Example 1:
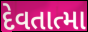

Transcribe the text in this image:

દેવતાત્મા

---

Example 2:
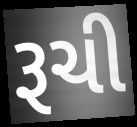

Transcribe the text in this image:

રૂચી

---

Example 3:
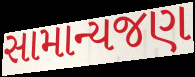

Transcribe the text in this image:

સામાન્યજણ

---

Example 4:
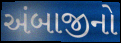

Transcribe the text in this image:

અંબાજીનો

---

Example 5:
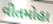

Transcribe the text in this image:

વીતમોહા